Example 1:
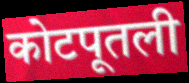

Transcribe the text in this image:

कोटपूतली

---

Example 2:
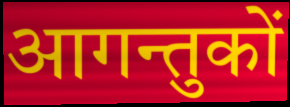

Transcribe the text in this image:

आगन्तुकों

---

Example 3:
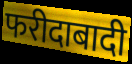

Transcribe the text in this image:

फरीदाबादी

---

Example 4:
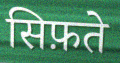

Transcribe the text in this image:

सिफ़ते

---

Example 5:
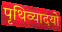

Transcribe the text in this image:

पृथिव्यादयो